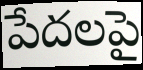
పేదలపై